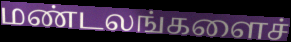
மண்டலங்களைச்